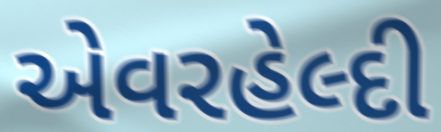
એવરહેલ્દી